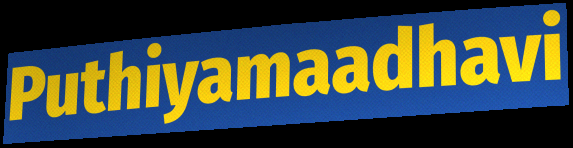
Puthiyamaadhavi